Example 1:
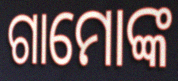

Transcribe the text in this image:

ଗାମୋଙ୍କ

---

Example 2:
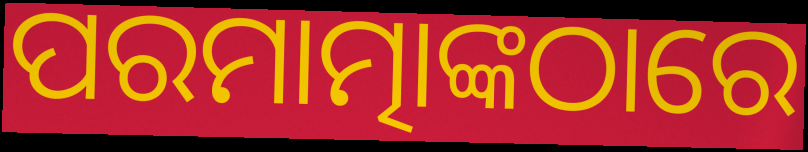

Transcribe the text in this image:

ପରମାତ୍ମାଙ୍କଠାରେ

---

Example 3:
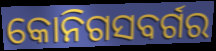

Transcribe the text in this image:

କୋନିଗସବର୍ଗର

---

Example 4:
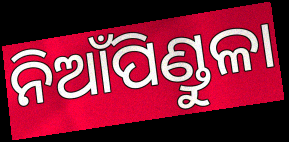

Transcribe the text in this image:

ନିଆଁପିଣ୍ଡୁଳା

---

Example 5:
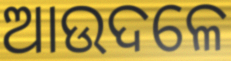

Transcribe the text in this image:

ଆଉଦଳେ